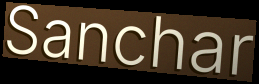
Sanchar